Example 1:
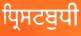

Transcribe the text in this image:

ਧ੍ਰਿਸਟਬੁਧੀ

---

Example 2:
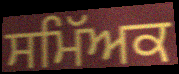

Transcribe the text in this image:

ਸਮਿੱਅਕ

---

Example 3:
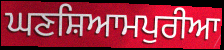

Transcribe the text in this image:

ਘਣਸ਼ਿਆਮਪੁਰੀਆ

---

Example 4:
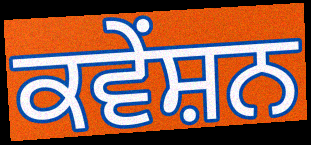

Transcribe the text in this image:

ਕਵੇਂਸ਼ਨ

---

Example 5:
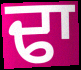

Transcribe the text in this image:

ਢਾ